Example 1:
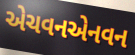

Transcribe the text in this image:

એચવનએનવન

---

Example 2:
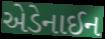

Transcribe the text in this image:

એડેનાઈન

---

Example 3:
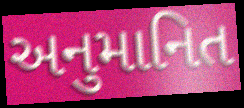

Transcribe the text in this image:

અનુમાનિત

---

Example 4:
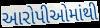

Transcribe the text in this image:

આરોપીઓમાંથી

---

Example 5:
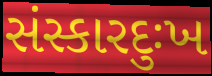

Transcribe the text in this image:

સંસ્કારદુઃખ